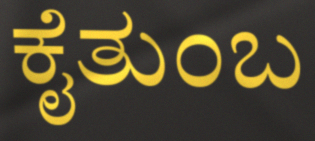
ಕೈತುಂಬ